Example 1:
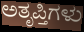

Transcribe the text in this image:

ಅತೃಪ್ತಿಗಳು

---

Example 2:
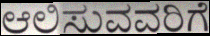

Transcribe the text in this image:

ಆಲಿಸುವವರಿಗೆ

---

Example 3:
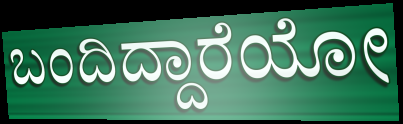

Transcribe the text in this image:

ಬಂದಿದ್ದಾರೆಯೋ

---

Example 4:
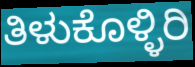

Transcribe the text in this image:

ತಿಳುಕೊಳ್ಳಿರಿ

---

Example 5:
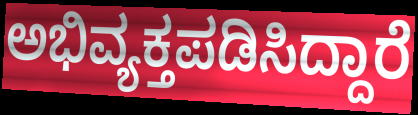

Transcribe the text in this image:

ಅಭಿವ್ಯಕ್ತಪಡಿಸಿದ್ದಾರೆ